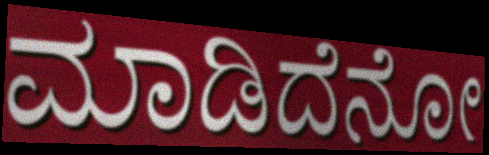
ಮಾಡಿದೆನೋ